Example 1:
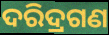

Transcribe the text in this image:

ଦରିଦ୍ରଗଣ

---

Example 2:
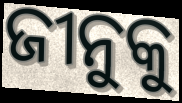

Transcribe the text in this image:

ଜୀନୁକୁ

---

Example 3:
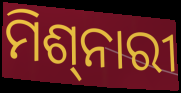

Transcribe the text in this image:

ମିଶ୍‍ନାରୀ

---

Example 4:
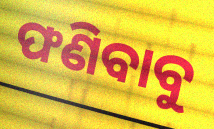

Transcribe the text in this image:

ଫଣିବାବୁ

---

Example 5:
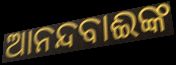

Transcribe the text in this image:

ଆନନ୍ଦବାଈଙ୍କ